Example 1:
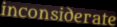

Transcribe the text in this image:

inconsiderate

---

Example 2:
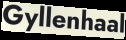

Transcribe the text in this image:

Gyllenhaal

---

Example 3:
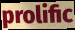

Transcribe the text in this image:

prolific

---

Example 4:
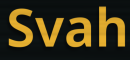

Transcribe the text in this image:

Svah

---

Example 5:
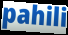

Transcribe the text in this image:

pahili